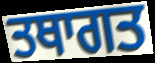
ਤਥਾਗਤ